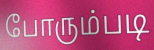
போரும்படி